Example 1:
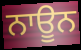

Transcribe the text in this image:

ਨਾਊਨ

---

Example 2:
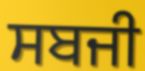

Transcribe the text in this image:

ਸਬਜੀ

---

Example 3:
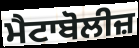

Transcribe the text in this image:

ਮੈਟਾਬੋਲੀਜ਼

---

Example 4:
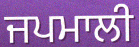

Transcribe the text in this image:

ਜਪਮਾਲੀ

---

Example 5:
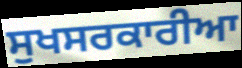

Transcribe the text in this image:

ਸੁਖਸਰਕਾਰੀਆ